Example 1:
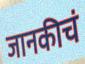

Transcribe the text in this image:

जानकीचं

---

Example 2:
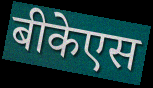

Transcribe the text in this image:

बीकेएस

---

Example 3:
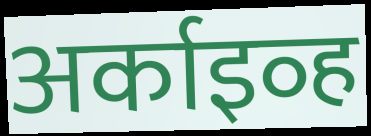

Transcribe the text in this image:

अर्काइव्ह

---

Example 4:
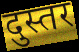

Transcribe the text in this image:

दुस्तर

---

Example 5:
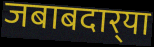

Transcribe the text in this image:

जबाबदार्‍या